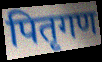
पितृगण